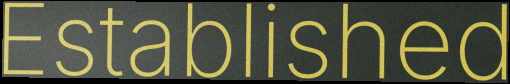
Established